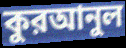
কুরআনুল